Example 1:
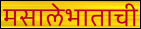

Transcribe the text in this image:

मसालेभाताची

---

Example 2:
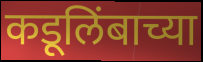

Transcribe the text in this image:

कडूलिंबाच्या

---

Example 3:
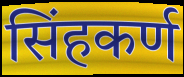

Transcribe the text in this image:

सिंहकर्ण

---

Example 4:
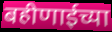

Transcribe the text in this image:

बहीणाईच्या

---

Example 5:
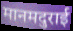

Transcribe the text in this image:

मानमदुराई